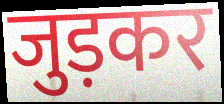
जुड़कर